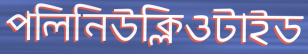
পলিনিউক্লিওটাইড